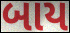
બાય